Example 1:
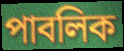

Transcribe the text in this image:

পাবলিক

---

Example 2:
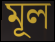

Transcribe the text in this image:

মূল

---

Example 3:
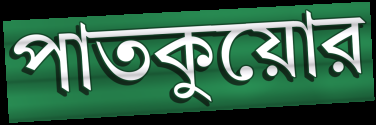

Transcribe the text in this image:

পাতকুয়োর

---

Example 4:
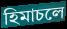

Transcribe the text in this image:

হিমাচলে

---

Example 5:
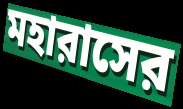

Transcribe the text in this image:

মহারাসের